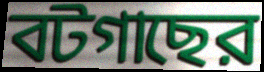
বটগাছের